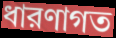
ধারণাগত